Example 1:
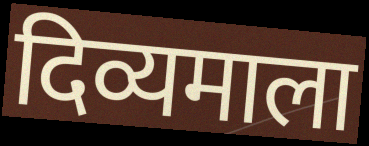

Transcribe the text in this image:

दिव्यमाला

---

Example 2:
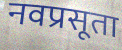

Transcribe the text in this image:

नवप्रसूता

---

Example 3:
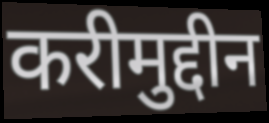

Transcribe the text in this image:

करीमुद्दीन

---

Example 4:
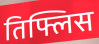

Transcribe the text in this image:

तिफ्लिस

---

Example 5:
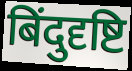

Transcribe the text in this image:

बिंदुदृष्टि